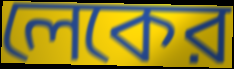
লেকের